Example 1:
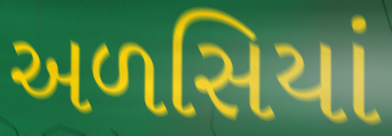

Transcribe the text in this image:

અળસિયાં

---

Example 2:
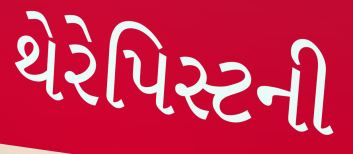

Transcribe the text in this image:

થેરેપિસ્ટની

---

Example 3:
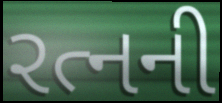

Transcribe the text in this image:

રત્નની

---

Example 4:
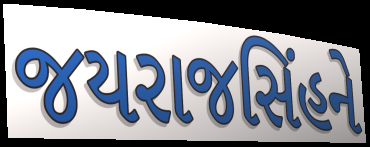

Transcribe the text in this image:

જયરાજસિંહને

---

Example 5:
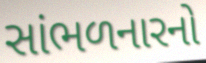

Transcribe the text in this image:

સાંભળનારનો